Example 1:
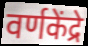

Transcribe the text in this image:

वर्णकेंद्रे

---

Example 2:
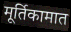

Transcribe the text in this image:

मूर्तिकामात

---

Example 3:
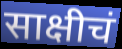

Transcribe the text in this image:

साक्षीचं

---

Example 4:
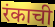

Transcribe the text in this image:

रंकाची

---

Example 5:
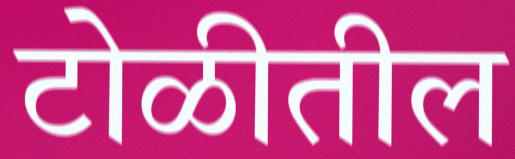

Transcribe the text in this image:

टोळीतील